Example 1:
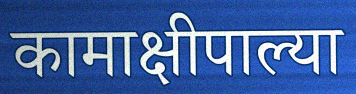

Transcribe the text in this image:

कामाक्षीपाल्या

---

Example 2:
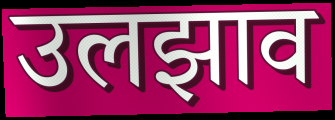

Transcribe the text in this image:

उलझाव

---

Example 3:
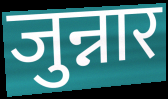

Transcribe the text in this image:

जुन्नार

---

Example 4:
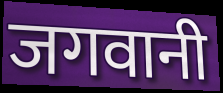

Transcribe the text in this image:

जगवानी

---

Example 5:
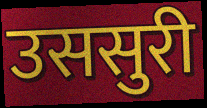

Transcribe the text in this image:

उससुरी